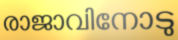
രാജാവിനോടു